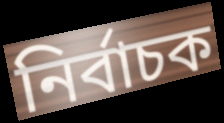
নির্বাচক